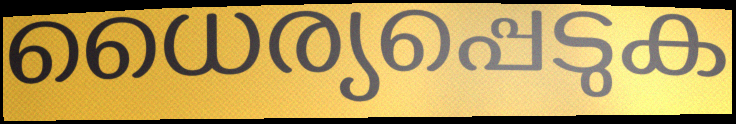
ധൈര്യപ്പെടുക